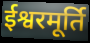
ईश्वरमूर्ति